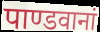
पाण्डवानां